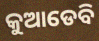
କୁଆଡେବି